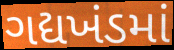
ગદ્યખંડમાં